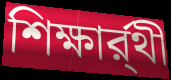
শিক্ষার্র্থী